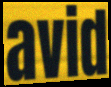
avid